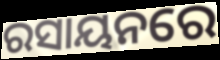
ରସାୟନରେ